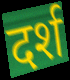
दर्श